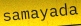
samayada